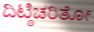
ದಿಟ್ಠಿಚರಿತೋ